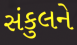
સંકુલને